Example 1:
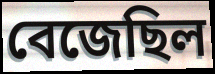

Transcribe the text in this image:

বেজেছিল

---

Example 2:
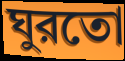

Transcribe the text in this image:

ঘুরতো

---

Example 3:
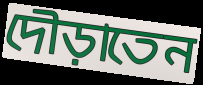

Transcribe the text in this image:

দৌড়াতেন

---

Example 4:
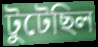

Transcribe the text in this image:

টুটেছিল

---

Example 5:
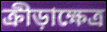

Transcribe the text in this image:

ক্রীড়াক্ষেত্র